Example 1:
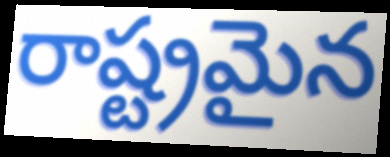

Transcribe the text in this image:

రాష్ట్రమైన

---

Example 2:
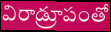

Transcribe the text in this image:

విరాడ్రూపంతో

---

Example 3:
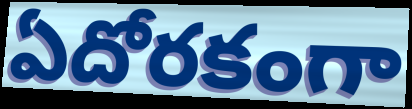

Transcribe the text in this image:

ఏదోరకంగా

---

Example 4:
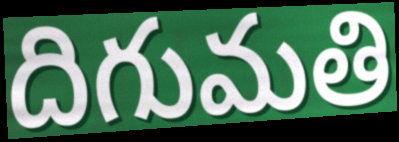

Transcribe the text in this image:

దిగుమతి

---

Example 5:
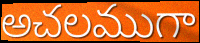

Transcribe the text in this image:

అచలముగా